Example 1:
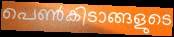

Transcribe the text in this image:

പെൺകിടാങ്ങളുടെ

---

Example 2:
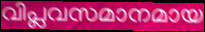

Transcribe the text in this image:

വിപ്ലവസമാനമായ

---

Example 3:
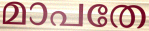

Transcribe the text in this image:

മാപതേ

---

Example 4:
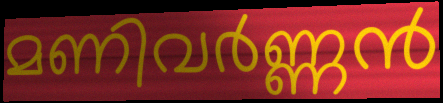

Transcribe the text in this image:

മണിവർണ്ണൻ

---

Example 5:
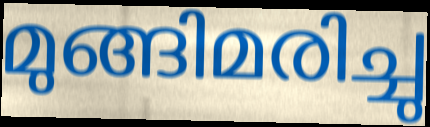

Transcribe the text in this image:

മുങ്ങിമരിച്ചു